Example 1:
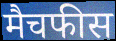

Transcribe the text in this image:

मैचफीस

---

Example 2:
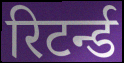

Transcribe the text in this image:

रिटर्न्ड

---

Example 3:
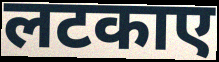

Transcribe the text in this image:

लटकाए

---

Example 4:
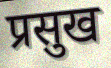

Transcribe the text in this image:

प्रसुख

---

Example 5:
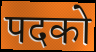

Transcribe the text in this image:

पदको